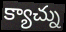
క్యాచ్ను